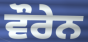
ਵੌਰੇਨ